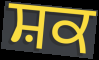
ਸ਼ਕ